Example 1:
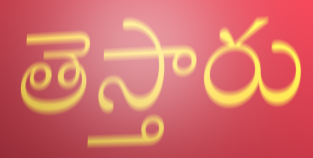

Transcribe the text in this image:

తెస్తారు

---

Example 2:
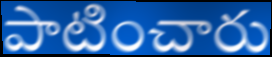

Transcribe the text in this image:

పాటించారు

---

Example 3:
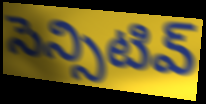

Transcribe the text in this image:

సెన్సిటివ్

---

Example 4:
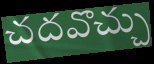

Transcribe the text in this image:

చదవొచ్చు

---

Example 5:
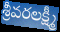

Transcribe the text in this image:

శ్రీవరలక్ష్మీ